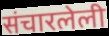
संचारलेली